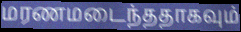
மரணமடைந்ததாகவும்